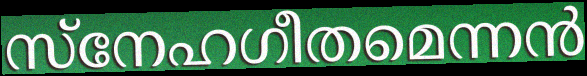
സ്നേഹഗീതമെന്നൻ